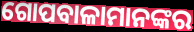
ଗୋପବାଳାମାନଙ୍କର